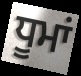
ਧੂਮਾਂ